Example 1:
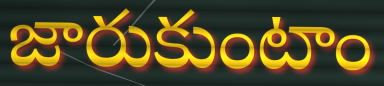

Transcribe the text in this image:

జారుకుంటాం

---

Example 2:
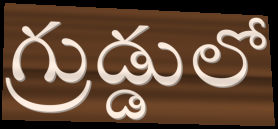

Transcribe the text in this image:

గ్రుడ్డులో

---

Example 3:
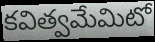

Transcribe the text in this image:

కవిత్వమేమిటో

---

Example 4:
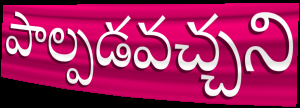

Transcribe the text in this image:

పాల్పడవచ్చని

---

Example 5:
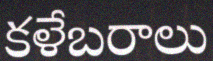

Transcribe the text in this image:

కళేబరాలు